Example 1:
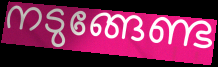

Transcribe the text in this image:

നടുങ്ങേണ്ട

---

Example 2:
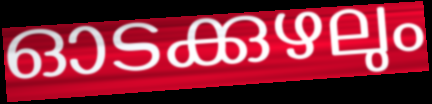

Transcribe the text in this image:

ഓടക്കുഴലും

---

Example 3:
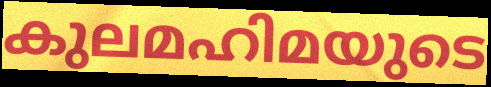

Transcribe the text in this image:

കുലമഹിമയുടെ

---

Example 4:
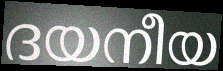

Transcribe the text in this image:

ദയനീയ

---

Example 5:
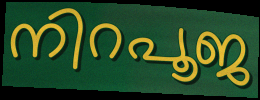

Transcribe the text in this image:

നിറപൂജ